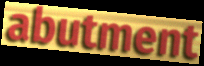
abutment